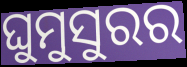
ଘୁମୁସୁରର